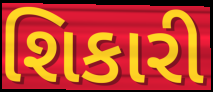
શિકારી